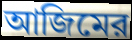
আজিমের